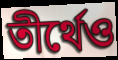
তীর্থেও